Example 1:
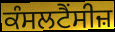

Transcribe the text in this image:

ਕੰਸਲਟੈਂਸੀਜ਼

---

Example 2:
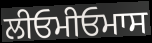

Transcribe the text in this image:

ਲੀਓਮੀਓਮਾਸ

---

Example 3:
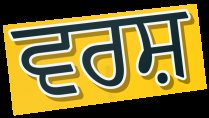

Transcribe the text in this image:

ਵਰਸ਼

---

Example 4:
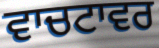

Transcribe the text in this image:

ਵਾਚਟਾਵਰ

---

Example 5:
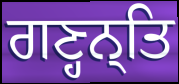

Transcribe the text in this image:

ਗਣ੍ਹਨ੍ਤਿ